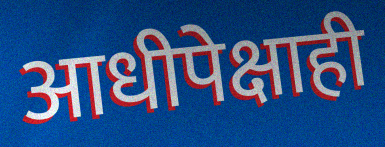
आधीपेक्षाही